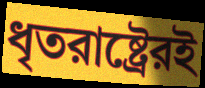
ধৃতরাষ্ট্রেরই